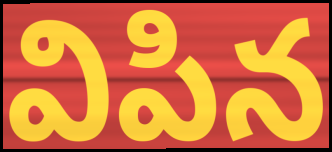
విపిన